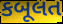
કબૂલત